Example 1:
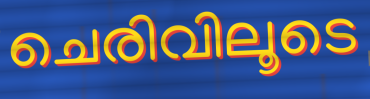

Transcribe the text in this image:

ചെരിവിലൂടെ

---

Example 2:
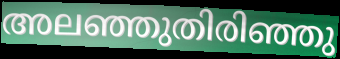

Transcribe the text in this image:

അലഞ്ഞുതിരിഞ്ഞു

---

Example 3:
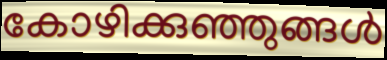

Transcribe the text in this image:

കോഴിക്കുഞ്ഞുങ്ങൾ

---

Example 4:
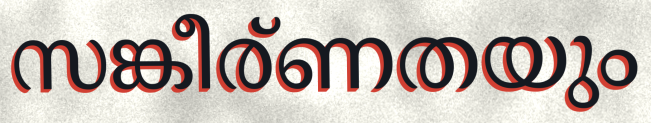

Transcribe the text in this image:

സങ്കീര്ണതയും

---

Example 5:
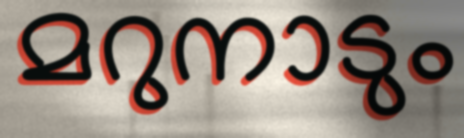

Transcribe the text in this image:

മറുനാടും